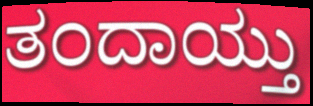
ತಂದಾಯ್ತು